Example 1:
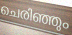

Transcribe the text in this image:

ചെരിഞ്ഞും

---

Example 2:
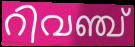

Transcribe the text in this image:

റിവഞ്ച്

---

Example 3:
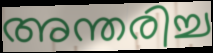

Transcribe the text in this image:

അന്തരിച്ച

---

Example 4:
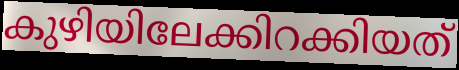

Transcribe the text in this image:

കുഴിയിലേക്കിറക്കിയത്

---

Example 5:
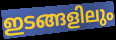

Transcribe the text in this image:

ഇടങ്ങളിലും